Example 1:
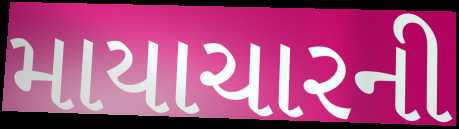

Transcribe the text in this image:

માયાચારની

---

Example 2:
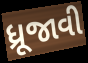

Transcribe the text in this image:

ધ્રૂજાવી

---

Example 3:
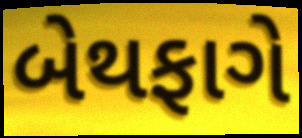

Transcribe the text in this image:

બેથફાગે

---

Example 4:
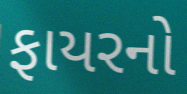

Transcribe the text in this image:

ફાયરનો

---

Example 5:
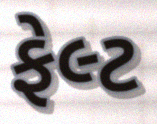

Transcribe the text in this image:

ફેલ્ટ